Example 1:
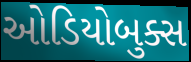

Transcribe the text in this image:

ઓડિયોબુક્સ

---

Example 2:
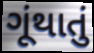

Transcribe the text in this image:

ગૂંથાતું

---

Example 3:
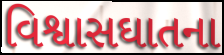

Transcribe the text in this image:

વિશ્વાસઘાતના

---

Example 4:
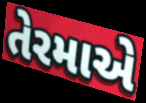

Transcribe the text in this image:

તેરમાએ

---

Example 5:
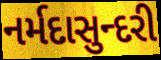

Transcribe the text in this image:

નર્મદાસુન્દરી